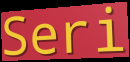
Seri